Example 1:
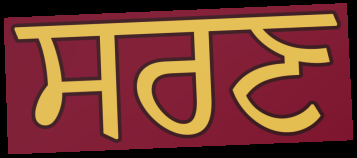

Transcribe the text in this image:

ਸਰਣ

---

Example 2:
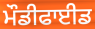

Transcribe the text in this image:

ਮੌਡੀਫਾਈਡ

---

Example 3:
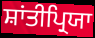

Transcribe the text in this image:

ਸ਼ਾਂਤੀਪ੍ਰਿਯਾ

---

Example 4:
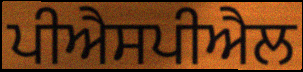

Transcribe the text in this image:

ਪੀਐਸਪੀਐਲ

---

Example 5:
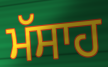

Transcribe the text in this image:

ਮੱਸਾਹ